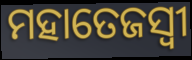
ମହାତେଜସ୍ୱୀ